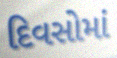
દિવસોમાં